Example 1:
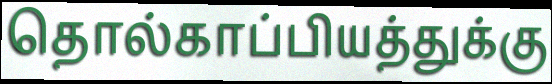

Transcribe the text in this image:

தொல்காப்பியத்துக்கு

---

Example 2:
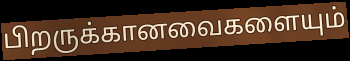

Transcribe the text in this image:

பிறருக்கானவைகளையும்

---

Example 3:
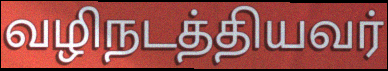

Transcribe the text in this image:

வழிநடத்தியவர்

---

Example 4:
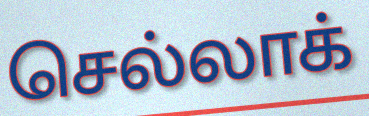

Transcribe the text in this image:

செல்லாக்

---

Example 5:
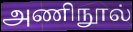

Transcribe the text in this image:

அணிநூல்